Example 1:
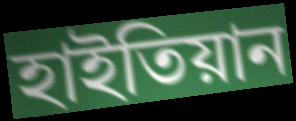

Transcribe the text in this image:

হাইতিয়ান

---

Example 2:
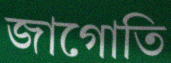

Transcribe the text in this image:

জাগোতি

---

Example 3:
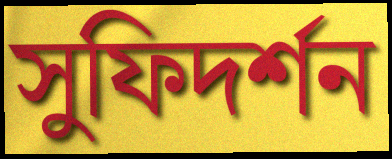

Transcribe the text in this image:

সুফিদর্শন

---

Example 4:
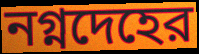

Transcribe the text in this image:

নগ্নদেহের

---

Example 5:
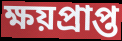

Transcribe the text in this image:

ক্ষয়প্রাপ্ত